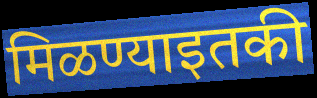
मिळण्याइतकी